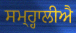
ਸਮ੍ਹ੍ਹਾਲੀਐ